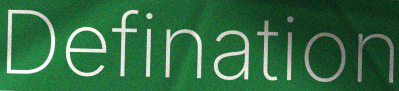
Defination